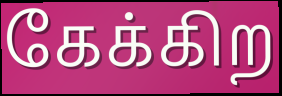
கேக்கிற